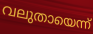
വലുതായെന്ന്